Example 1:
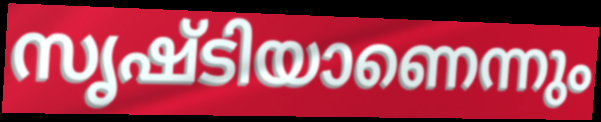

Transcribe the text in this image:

സൃഷ്ടിയാണെന്നും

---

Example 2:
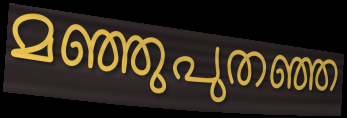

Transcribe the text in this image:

മഞ്ഞുപുതഞ്ഞ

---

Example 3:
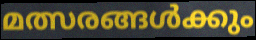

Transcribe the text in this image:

മത്സരങ്ങൾക്കും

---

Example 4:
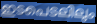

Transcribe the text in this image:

ഇടപെടലിലും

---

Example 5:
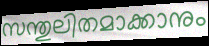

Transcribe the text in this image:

സന്തുലിതമാക്കാനും